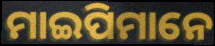
ମାଇପିମାନେ